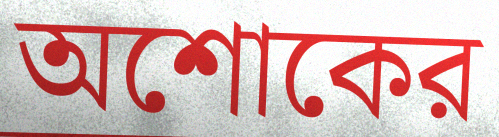
অশোকের